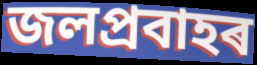
জলপ্ৰবাহৰ